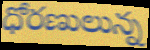
ధోరణులున్న